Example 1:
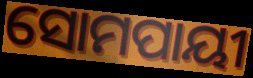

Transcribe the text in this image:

ସୋମପାୟୀ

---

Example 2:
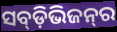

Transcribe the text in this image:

ସବ୍‍ଡ଼ିଭିଜନ୍‍ର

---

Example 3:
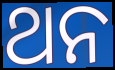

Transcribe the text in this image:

ଥନ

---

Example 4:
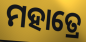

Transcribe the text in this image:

ମହାତ୍ରେ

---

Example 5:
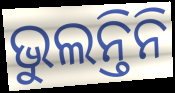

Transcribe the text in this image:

ଭୁଲନ୍ତିନି